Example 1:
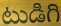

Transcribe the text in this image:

టుడిగి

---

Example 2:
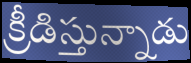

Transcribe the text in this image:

క్రీడిస్తున్నాడు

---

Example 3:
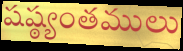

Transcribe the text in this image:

షష్ఠ్యంతములు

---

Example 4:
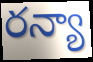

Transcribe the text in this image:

రన్యా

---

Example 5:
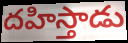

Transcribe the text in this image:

దహిస్తాడు